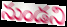
నుండని